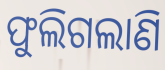
ଫୁଲିଗଲାଣି